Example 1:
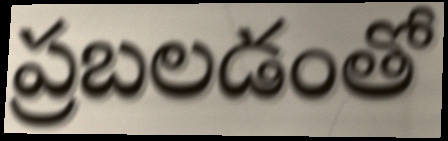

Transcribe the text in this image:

ప్రబలడంతో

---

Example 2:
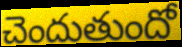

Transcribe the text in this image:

చెందుతుందో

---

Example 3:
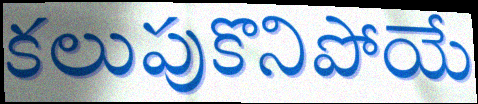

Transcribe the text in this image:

కలుపుకొనిపోయే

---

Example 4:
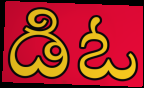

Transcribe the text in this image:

డిఓ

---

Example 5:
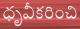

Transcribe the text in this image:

ధృవీకరించి